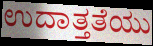
ಉದಾತ್ತತೆಯು